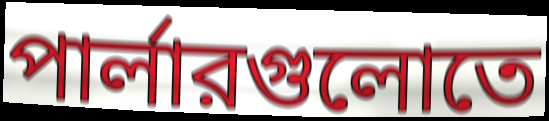
পার্লারগুলোতে